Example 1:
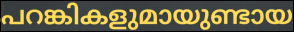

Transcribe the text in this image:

പറങ്കികളുമായുണ്ടായ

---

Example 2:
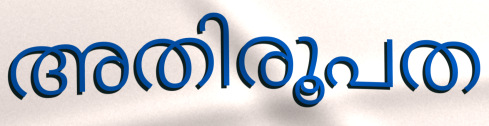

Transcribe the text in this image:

അതിരൂപത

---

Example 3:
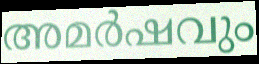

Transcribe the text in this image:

അമർഷവും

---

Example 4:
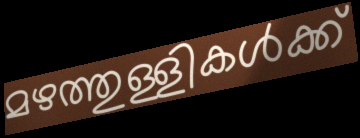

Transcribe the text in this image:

മഴത്തുള്ളികൾക്ക്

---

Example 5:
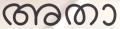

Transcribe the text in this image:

അതാ